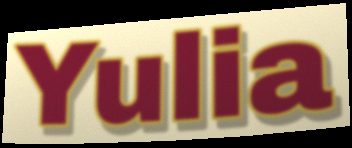
Yulia